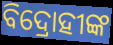
ବିଦ୍ରୋହୀଙ୍କ